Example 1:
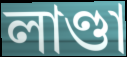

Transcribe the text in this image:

লাণ্ডা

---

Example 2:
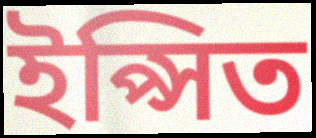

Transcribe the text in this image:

ইপ্সিত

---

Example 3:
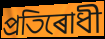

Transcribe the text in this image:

প্ৰতিৰোধী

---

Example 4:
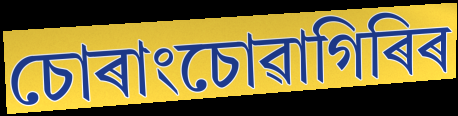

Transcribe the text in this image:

চোৰাংচোৱাগিৰিৰ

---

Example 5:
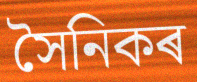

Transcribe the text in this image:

সৈনিকৰ